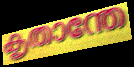
കൃതാന്തേ